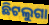
ଛିଟଲୁଗା